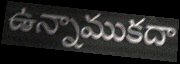
ఉన్నాముకదా